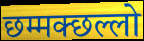
छम्मक्छल्लो